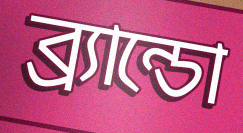
ব্র্যান্ডো